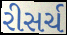
રીસર્ચ